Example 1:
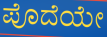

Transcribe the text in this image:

ಪೊದೆಯೇ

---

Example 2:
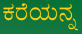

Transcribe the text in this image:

ಕರೆಯನ್ನ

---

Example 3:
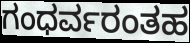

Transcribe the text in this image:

ಗಂಧರ್ವರಂತಹ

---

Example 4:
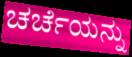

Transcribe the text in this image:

ಚರ್ಚೆಯನ್ನು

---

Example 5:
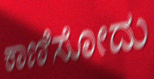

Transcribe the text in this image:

ಕಾಣಿಸೋದು